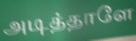
அடித்தாளே